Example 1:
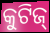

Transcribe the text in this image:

କୁଟିଜ୍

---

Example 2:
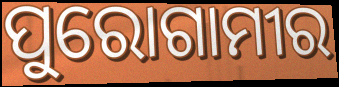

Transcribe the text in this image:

ପୁରୋଗାମୀର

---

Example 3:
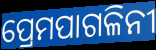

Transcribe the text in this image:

ପ୍ରେମପାଗଳିନୀ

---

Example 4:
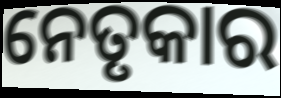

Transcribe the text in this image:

ନେତୃକାର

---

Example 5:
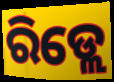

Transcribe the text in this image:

ରିଡ୍ଲେ